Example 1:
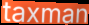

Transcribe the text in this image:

taxman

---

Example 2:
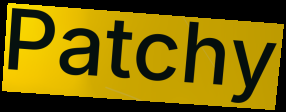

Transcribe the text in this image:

Patchy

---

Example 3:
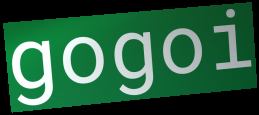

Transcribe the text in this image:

gogoi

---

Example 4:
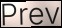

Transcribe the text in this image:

Prev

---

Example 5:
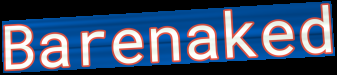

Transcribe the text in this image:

Barenaked